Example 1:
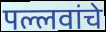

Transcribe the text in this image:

पल्लवांचे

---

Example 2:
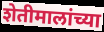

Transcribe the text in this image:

शेतीमालांच्या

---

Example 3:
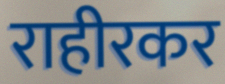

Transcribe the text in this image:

राहीरकर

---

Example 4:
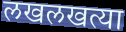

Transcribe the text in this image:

लखलखत्या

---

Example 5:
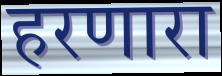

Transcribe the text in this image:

हरणारा